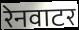
रेनवाटर